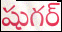
షుగర్